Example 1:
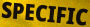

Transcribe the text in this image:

SPECIFIC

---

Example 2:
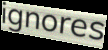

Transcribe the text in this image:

ignores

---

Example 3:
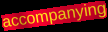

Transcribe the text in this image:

accompanying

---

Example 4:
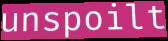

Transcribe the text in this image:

unspoilt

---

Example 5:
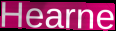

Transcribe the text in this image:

Hearne